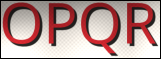
OPQR